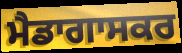
ਮੈਡਾਗਾਸਕਰ